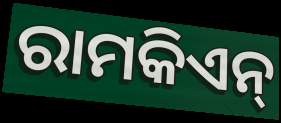
ରାମକିଏନ୍